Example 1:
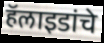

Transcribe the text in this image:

हॅलाइडांचे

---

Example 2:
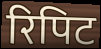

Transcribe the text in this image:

रिपिट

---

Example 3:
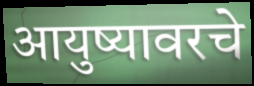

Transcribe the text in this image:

आयुष्यावरचे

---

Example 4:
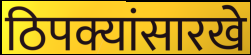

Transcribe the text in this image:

ठिपक्यांसारखे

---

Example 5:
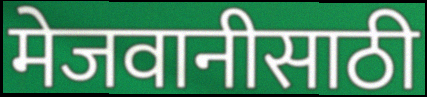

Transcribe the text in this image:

मेजवानीसाठी